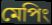
মেপিং